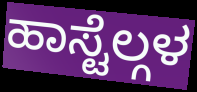
ಹಾಸ್ಟೆಲ್ಗಳ